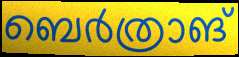
ബെർത്രാങ്